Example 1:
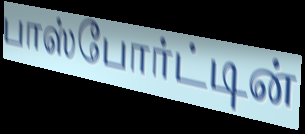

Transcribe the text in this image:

பாஸ்போர்ட்டின்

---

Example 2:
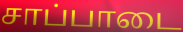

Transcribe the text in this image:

சாப்பாடை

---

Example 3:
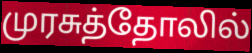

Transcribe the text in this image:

முரசுத்தோலில்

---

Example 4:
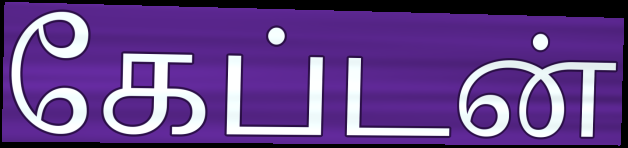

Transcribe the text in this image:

கேப்டன்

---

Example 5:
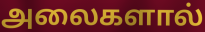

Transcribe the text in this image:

அலைகளால்